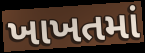
ખાખતમાં